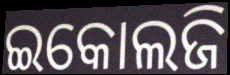
ଇକୋଲଜି